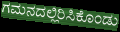
ಗಮನದಲ್ಲಿರಿಸಿಕೊಂಡು